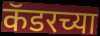
कॅडरच्या